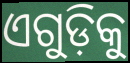
ଏଗୁଡ଼ିକୁ